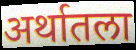
अर्थातला